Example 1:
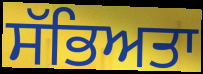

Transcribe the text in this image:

ਸੱਭਿਅਤਾ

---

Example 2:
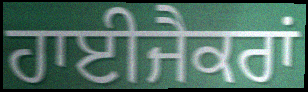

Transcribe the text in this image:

ਹਾਈਜੈਕਰਾਂ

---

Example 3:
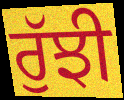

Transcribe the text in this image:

ਰੁੱਝੀ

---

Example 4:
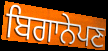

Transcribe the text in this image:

ਬਿਗਾਨੇਪਣ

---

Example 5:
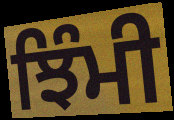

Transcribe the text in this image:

ਝਿੰਮੀ